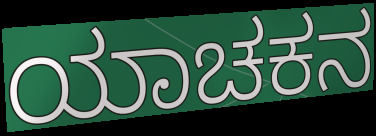
ಯಾಚಕನ